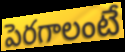
పెరగాలంటే